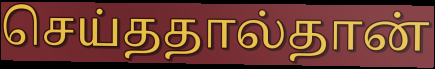
செய்ததால்தான்